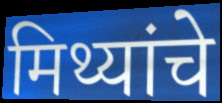
मिथ्यांचे